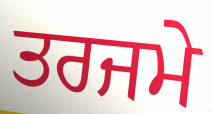
ਤਰਜਮੇ